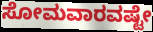
ಸೋಮವಾರವಷ್ಟೇ